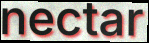
nectar